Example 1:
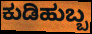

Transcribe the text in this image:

ಕುಡಿಹುಬ್ಬ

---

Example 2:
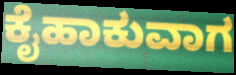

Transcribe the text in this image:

ಕೈಹಾಕುವಾಗ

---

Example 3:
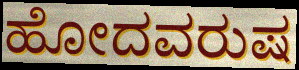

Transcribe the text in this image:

ಹೋದವರುಷ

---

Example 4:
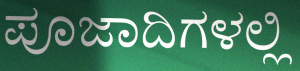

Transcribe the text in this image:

ಪೂಜಾದಿಗಳಲ್ಲಿ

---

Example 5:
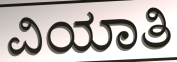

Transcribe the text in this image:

ವಿಯಾತಿ